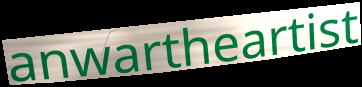
anwartheartist